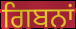
ਗਿਬਨਾਂ